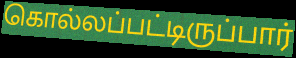
கொல்லப்பட்டிருப்பார்